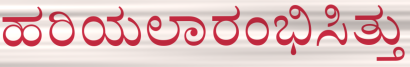
ಹರಿಯಲಾರಂಭಿಸಿತ್ತು